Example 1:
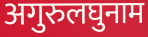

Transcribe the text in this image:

अगुरुलघुनाम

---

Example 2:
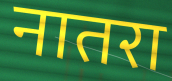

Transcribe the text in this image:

नातरा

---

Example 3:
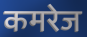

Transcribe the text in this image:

कमरेज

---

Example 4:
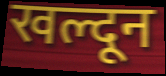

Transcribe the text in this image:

खल्दून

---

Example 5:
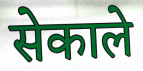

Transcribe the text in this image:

सेकाले